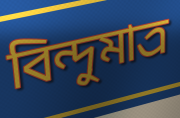
বিন্দুমাত্র